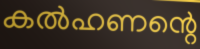
കൽഹണന്റെ